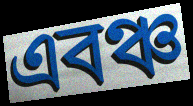
এবঞ্চ